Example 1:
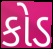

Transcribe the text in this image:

કોડ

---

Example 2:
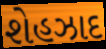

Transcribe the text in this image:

શેહઝાદ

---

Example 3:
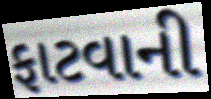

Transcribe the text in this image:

ફાટવાની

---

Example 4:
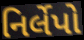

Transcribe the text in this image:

નિર્લેપો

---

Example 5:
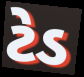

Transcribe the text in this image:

ટેડ